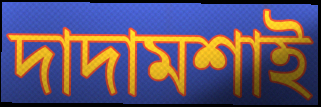
দাদামশাই